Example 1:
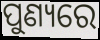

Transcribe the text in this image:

ପୁଣ୍ୟରେ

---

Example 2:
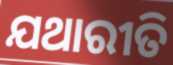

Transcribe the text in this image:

ଯଥାରୀତି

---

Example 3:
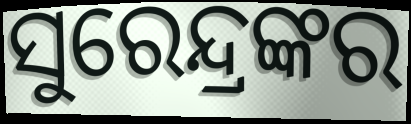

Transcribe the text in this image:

ସୁରେନ୍ଦ୍ରଙ୍କର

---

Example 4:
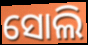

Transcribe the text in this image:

ସୋଲି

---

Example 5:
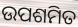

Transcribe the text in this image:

ଉପଶମିତ